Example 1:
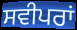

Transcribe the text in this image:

ਸਵੀਪਰਾਂ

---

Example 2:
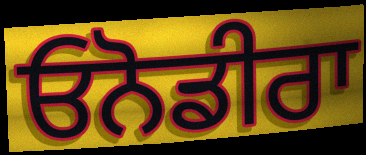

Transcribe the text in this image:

ਓਨੋਡੀਰਾ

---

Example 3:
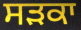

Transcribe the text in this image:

ਸੜਕਾ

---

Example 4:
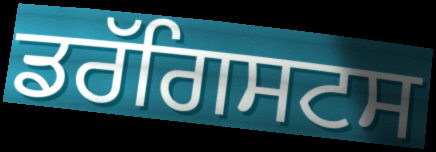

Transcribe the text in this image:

ਡਰੱਗਿਸਟਸ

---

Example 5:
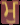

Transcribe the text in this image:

ਮੁ